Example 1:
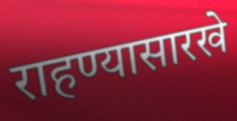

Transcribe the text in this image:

राहण्यासारखे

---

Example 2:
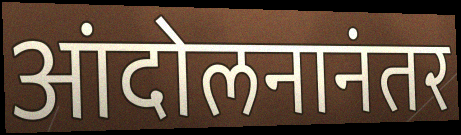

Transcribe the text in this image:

आंदोलनानंतर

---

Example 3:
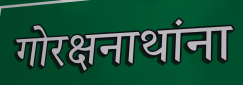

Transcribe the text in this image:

गोरक्षनाथांना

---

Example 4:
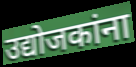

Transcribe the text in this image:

उद्योजकांना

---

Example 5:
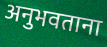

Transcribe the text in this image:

अनुभवताना